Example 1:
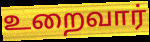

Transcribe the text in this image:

உறைவார்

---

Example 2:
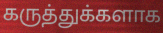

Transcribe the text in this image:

கருத்துக்களாக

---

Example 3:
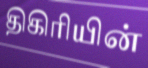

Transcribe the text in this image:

திகிரியின்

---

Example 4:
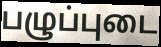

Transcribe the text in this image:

பழுப்புடை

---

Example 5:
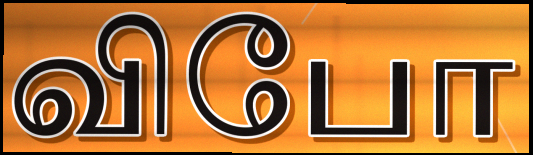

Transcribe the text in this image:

விபோ